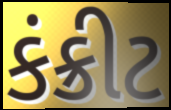
કંક્રીટ